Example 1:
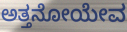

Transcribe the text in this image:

ಅತ್ತನೋಯೇವ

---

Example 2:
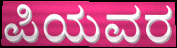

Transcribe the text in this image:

ಪಿಯವರ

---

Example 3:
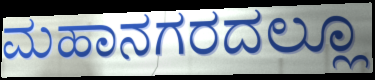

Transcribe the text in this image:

ಮಹಾನಗರದಲ್ಲೂ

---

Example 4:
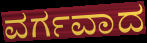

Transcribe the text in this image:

ವರ್ಗವಾದ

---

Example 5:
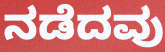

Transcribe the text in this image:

ನಡೆದವು